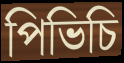
পিভিচি